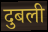
दुबली